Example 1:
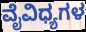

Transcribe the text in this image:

ವೈವಿಧ್ಯಗಳ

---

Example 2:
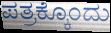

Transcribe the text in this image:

ಪತ್ರಕ್ಕೊಂದು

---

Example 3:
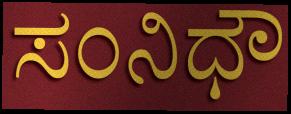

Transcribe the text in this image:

ಸಂನಿಧೌ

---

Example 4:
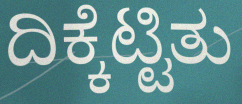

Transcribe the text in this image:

ದಿಕ್ಕೆಟ್ಟಿತು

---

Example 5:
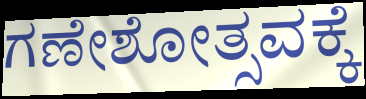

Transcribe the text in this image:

ಗಣೇಶೋತ್ಸವಕ್ಕೆ